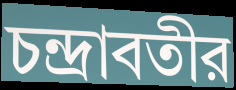
চন্দ্রাবতীর